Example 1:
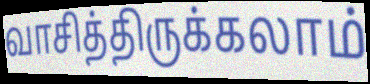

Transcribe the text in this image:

வாசித்திருக்கலாம்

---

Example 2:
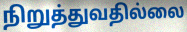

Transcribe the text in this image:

நிறுத்துவதில்லை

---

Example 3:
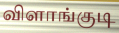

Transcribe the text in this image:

விளாங்குடி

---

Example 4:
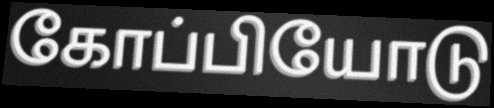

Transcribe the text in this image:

கோப்பியோடு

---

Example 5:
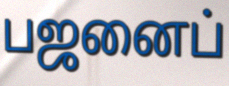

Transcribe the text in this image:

பஜனைப்